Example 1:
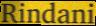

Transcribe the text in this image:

Rindani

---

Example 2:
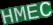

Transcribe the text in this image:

HMEC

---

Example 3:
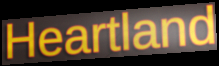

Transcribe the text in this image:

Heartland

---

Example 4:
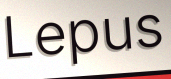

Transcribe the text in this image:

Lepus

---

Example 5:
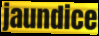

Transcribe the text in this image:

jaundice